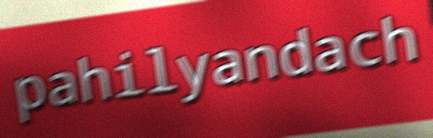
pahilyandach